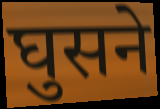
घुसने